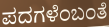
ಪದಗಳೆಂಬಂತೆ